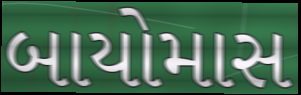
બાયોમાસ